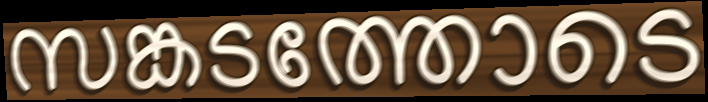
സങ്കടത്തോടെ